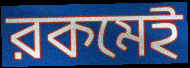
রকমেই